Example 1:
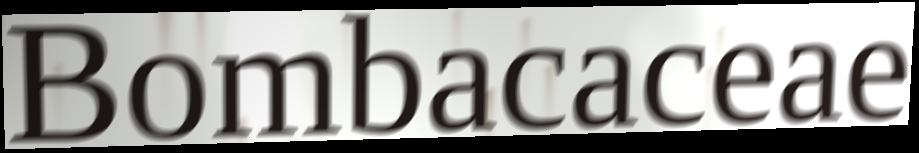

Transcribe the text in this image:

Bombacaceae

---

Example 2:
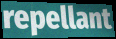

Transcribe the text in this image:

repellant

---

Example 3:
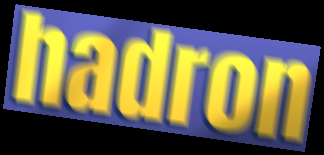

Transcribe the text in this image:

hadron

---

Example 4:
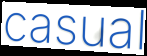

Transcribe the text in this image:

casual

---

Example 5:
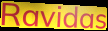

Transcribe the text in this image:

Ravidas